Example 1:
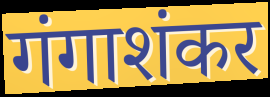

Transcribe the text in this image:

गंगाशंकर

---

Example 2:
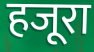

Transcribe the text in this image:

हजूरा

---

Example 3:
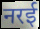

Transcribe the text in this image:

नरई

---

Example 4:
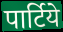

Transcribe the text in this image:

पार्टिये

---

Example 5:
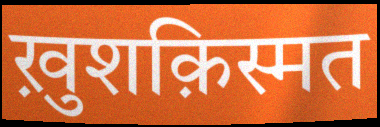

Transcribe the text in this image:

ख़ुशक़िस्मत